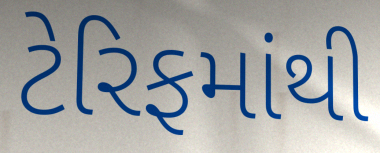
ટેરિફમાંથી